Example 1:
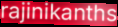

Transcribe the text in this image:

rajinikanths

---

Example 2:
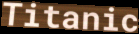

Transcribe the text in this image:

Titanic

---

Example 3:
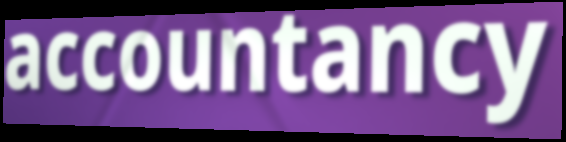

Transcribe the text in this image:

accountancy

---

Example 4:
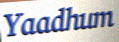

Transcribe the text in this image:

Yaadhum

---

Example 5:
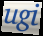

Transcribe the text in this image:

ugi